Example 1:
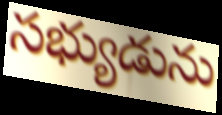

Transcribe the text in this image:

సభ్యుడును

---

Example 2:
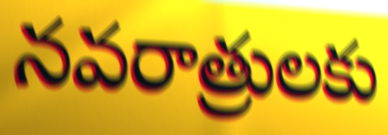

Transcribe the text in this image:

నవరాత్రులకు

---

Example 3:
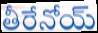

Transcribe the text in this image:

తీరేనోయ్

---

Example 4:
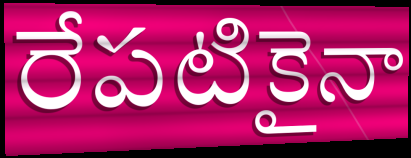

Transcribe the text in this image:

రేపటికైనా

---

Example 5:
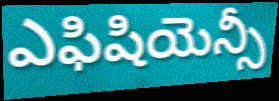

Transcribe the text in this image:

ఎఫిషియెన్సీ